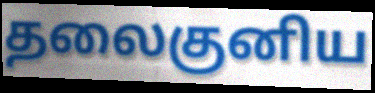
தலைகுனிய